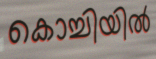
കൊച്ചിയിൽ